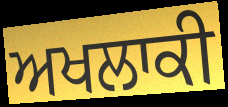
ਅਖਲਾਕੀ